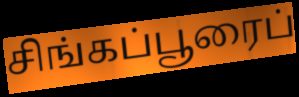
சிங்கப்பூரைப்